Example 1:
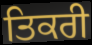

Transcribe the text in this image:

ਤਿਕਰੀ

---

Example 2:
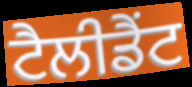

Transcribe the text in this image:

ਟੈਲੀਡੈਂਟ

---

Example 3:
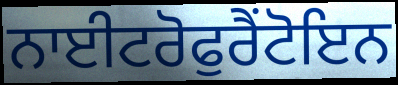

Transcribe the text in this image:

ਨਾਈਟਰੋਫੁਰੈਂਟੋਇਨ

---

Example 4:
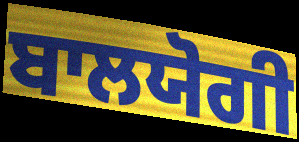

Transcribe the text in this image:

ਬਾਲਯੋਗੀ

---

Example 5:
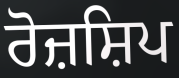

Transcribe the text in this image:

ਰੋਜ਼ਸ਼ਿਪ